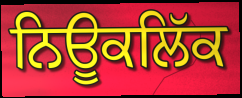
ਨਿਊਕਲਿੱਕ